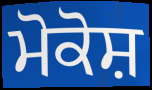
ਮੋਕੋਸ਼